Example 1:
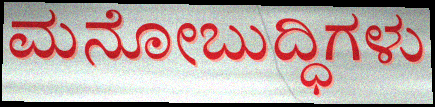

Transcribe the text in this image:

ಮನೋಬುದ್ಧಿಗಳು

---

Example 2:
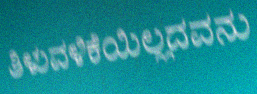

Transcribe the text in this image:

ತಿಳುವಳಿಕೆಯಿಲ್ಲದವನು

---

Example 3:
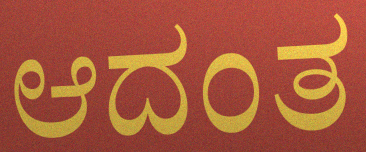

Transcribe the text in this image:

ಆದಂತ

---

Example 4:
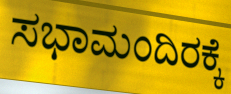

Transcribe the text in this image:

ಸಭಾಮಂದಿರಕ್ಕೆ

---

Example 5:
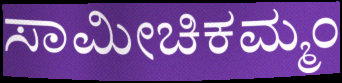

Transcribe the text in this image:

ಸಾಮೀಚಿಕಮ್ಮಂ